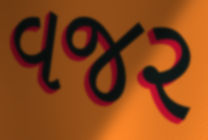
વજર